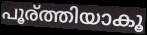
പൂര്ത്തിയാകൂ